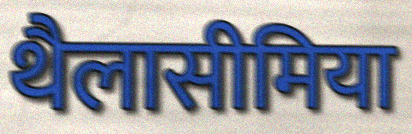
थैलासीमिया